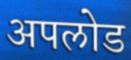
अपलोड